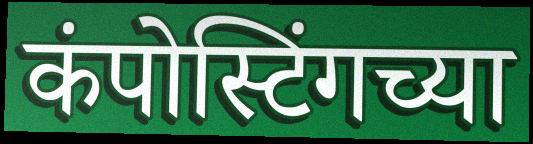
कंपोस्टिंगच्या